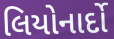
લિયોનાર્દો